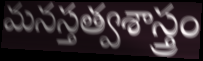
మనస్తత్వశాస్త్రం